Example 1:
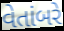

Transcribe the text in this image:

વેતાંબરે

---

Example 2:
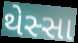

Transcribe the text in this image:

થેસ્સા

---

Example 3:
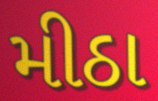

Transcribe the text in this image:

મીઠા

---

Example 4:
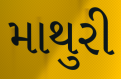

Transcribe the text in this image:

માથુરી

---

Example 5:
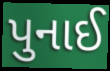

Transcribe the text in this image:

પુનાઈ